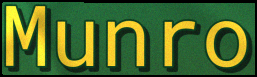
Munro